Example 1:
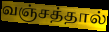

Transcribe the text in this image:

வஞ்சத்தால்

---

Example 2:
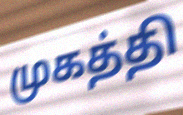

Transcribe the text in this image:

முகத்தி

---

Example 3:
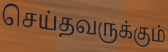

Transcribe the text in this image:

செய்தவருக்கும்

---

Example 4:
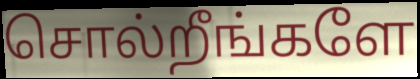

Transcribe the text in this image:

சொல்றீங்களே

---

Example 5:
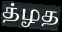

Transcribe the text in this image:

த்ழத